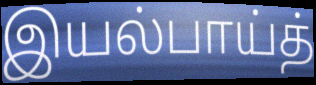
இயல்பாய்த்